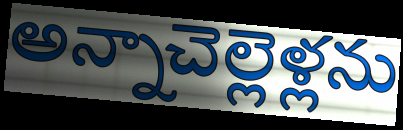
అన్నాచెల్లెళ్లను